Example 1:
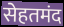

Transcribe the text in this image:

सेहतमंद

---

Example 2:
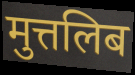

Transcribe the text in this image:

मुत्तलिब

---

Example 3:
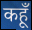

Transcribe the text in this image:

कहूँ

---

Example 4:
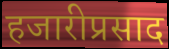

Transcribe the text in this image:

हजारीप्रसाद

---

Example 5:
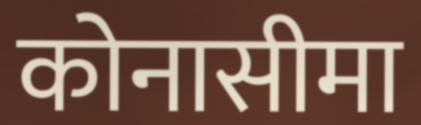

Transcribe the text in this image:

कोनासीमा